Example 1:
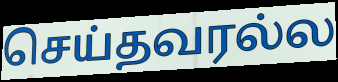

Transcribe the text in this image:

செய்தவரல்ல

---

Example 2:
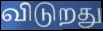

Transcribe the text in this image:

விடுறது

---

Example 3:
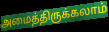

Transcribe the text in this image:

அமைத்திருக்கலாம்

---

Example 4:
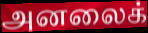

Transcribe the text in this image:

அனலைக்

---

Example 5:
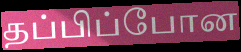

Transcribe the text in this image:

தப்பிப்போன